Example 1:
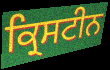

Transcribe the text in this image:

ਕ੍ਰਿਸਟੀਨ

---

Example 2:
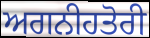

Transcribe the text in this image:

ਅਗਨੀਹਤੋਰੀ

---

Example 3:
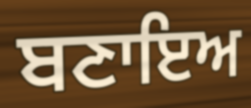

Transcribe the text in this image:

ਬਣਾਇਅ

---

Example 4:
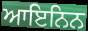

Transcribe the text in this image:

ਆਇਨਿਨ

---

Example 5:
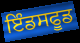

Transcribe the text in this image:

ਇੰਡਸਫੂਡ